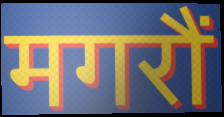
मगरौं